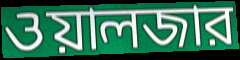
ওয়ালজার